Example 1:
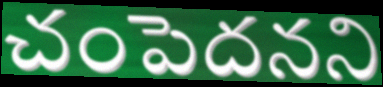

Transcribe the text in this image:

చంపెదనని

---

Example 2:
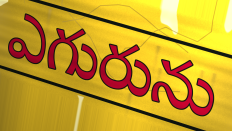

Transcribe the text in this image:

ఎగురును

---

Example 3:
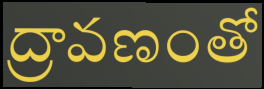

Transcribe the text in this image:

ద్రావణంతో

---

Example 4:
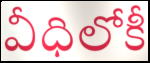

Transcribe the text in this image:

వీధిలోకీ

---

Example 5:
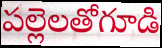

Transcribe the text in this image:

పల్లెలతోగూడి